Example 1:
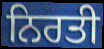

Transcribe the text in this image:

ਨਿਰਤੀ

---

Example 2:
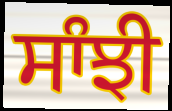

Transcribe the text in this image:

ਸਾੰਝੀ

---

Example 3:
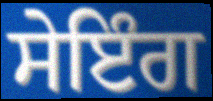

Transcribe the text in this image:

ਸੇਇੰਗ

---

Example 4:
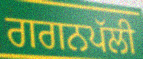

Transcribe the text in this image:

ਗਗਨਪੱਲੀ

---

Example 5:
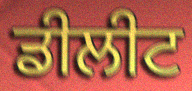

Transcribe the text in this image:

ਡੀਲੀਟ